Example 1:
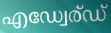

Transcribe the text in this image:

എഡ്വേര്ഡ്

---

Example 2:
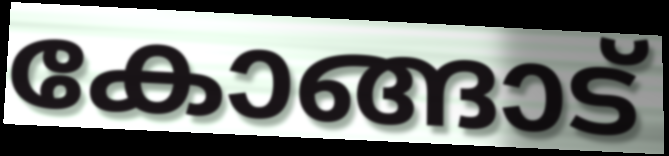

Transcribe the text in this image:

കോങ്ങാട്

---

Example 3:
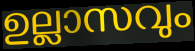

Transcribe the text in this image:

ഉല്ലാസവും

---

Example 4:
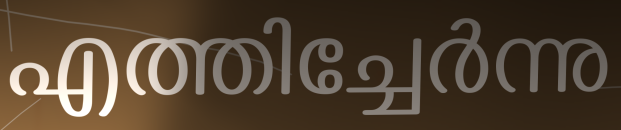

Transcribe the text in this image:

എത്തിച്ചേർന്നു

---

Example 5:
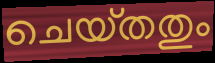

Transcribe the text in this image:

ചെയ്‌തതും